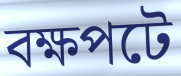
বক্ষপটে